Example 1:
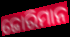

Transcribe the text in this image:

ଜୋରିମାନ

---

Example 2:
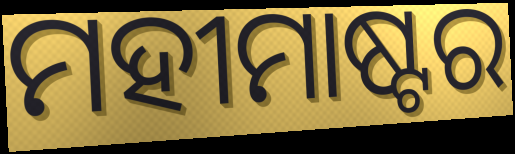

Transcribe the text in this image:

ମହୀମାଷ୍ଟର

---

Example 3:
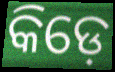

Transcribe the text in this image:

କିଡ଼େ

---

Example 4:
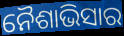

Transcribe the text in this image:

ନୈଶାଭିସାର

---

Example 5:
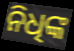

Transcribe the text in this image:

ନିଧିଙ୍କ